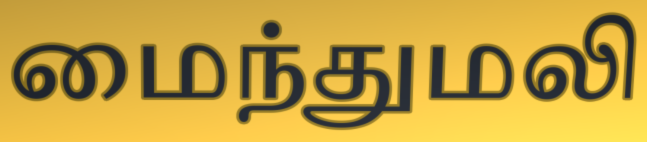
மைந்துமலி